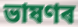
ভাষণৰ